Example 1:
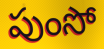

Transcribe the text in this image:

పుంసో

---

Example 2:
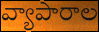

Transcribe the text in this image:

వ్యాపారాల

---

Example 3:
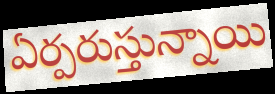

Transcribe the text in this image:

ఏర్పరుస్తున్నాయి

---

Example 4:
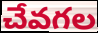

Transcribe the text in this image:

చేవగల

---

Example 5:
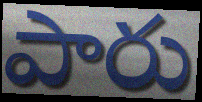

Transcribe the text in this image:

పారు